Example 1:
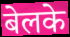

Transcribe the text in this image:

बेलके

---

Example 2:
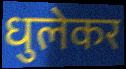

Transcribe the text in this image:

धुलेकर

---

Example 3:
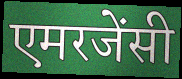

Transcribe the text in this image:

एमरजेंसी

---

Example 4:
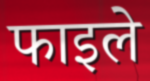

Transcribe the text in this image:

फाइले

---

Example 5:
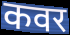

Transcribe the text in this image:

कवर